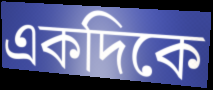
একদিকে